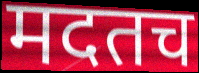
मदतच